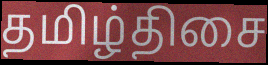
தமிழ்திசை